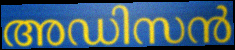
അഡിസൻ